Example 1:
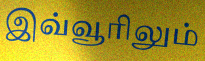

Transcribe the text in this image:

இவ்வூரிலும்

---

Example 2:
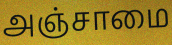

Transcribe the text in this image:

அஞ்சாமை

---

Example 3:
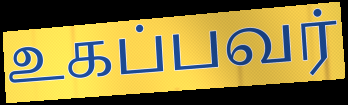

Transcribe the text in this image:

உகப்பவர்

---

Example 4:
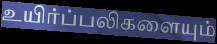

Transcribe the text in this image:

உயிர்ப்பலிகளையும்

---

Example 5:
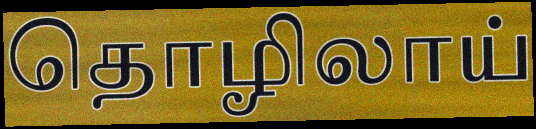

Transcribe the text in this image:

தொழிலாய்